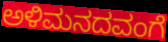
ಅಳಿಮನದವಂಗೆ